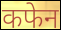
कफेन